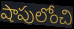
షాపులోంచి